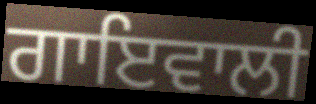
ਗਾਇਵਾਲੀ